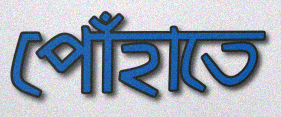
পোঁহাতে